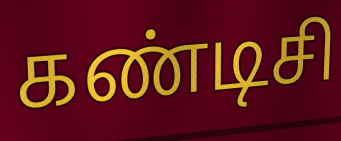
கண்டிசி